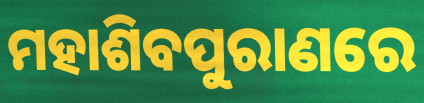
ମହାଶିବପୁରାଣରେ